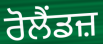
ਰੋਲੈਂਡਜ਼